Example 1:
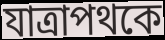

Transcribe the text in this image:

যাত্রাপথকে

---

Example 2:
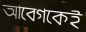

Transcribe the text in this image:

আবেগকেই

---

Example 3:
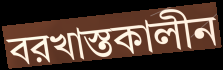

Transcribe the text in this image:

বরখাস্তকালীন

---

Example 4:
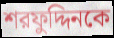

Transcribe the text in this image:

শরফুদ্দিনকে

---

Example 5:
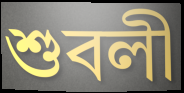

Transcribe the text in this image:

শুবলী